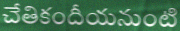
చేతికందీయనుంటి